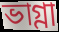
ভাগ্না